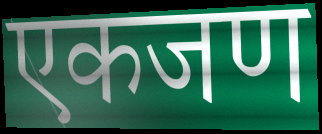
एकजण